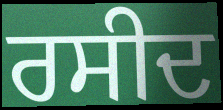
ਰਸੀਦ